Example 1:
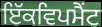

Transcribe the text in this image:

ਇੱਕਵਿਪਮੈਂਟ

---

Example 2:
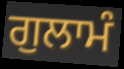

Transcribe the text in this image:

ਗੁਲਾਮੰ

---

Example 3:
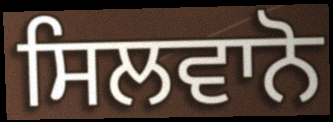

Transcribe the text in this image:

ਸਿਲਵਾਨੋ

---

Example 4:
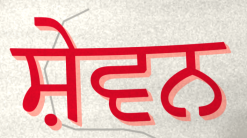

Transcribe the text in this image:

ਸ਼ੇਵਨ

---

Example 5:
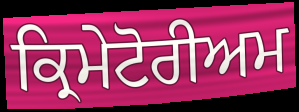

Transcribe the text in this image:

ਕ੍ਰਿਮੇਟੋਰੀਅਮ